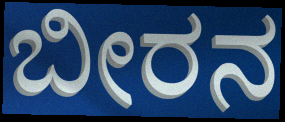
ಬೀರನ